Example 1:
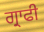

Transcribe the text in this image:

ਗ੍ਰਾਫੀ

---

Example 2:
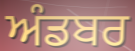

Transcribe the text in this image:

ਅੰਡਬਰ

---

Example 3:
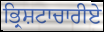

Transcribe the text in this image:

ਭ੍ਰਿਸ਼ਟਾਚਾਰੀਏ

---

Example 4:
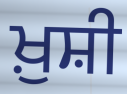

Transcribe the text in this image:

ਖ਼ੁਸ਼ੀ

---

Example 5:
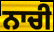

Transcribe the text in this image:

ਨਾਚੀ